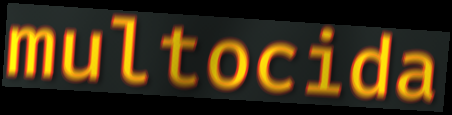
multocida